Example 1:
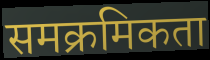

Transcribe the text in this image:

समक्रमिकता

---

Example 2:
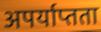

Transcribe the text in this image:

अपर्याप्तता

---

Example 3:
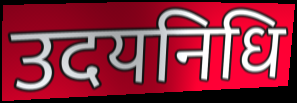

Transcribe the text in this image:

उदयनिधि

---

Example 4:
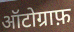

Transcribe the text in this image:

ऑटोग्राफ़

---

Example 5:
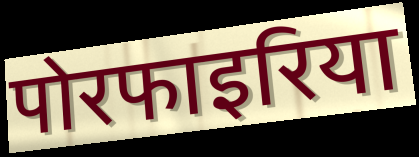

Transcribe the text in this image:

पोरफाइरिया